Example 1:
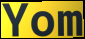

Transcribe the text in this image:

Yom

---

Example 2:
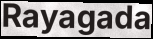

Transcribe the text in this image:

Rayagada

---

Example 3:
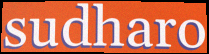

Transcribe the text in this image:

sudharo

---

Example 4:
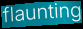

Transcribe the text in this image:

flaunting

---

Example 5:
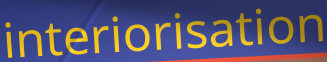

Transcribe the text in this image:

interiorisation